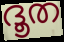
ദൂത